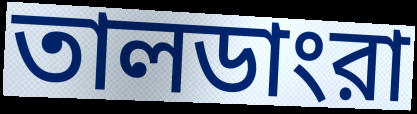
তালডাংরা